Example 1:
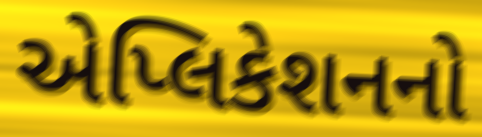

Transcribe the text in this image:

એપ્લિકેશનનો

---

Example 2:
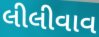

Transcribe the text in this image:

લીલીવાવ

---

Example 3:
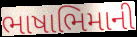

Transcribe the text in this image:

ભાષાભિમાની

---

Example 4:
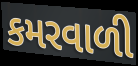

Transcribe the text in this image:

કમરવાળી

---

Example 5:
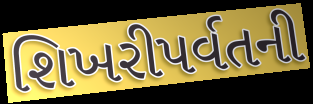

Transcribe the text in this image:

શિખરીપર્વતની